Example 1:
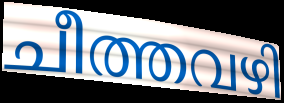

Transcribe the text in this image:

ചീത്തവഴി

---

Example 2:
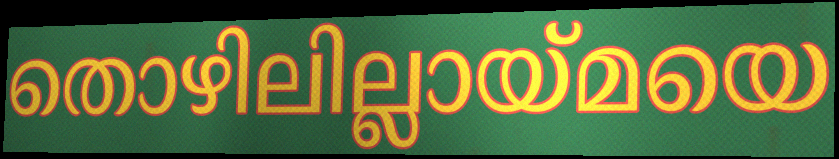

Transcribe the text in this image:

തൊഴിലില്ലായ്മയെ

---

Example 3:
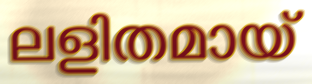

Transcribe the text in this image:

ലളിതമായ്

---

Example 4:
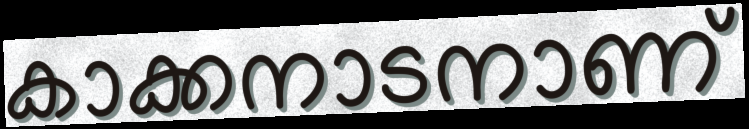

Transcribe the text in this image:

കാക്കനാടനാണ്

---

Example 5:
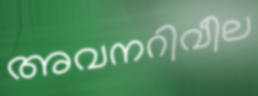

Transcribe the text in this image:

അവനറിവീല